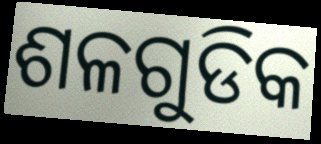
ଶଳଗୁଡିକ